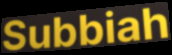
Subbiah